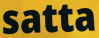
satta